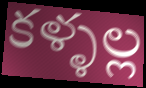
కళ్ళల్ల